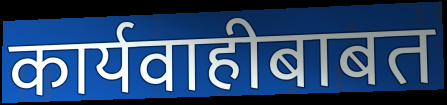
कार्यवाहीबाबत